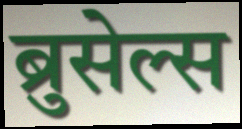
ब्रुसेल्स